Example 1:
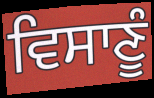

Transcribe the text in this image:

ਵਿਸਾਣੂੰ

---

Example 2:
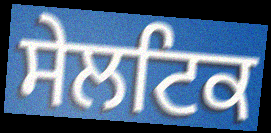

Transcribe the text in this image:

ਸੇਲਟਿਕ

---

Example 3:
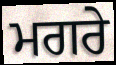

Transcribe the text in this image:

ਮਗਰੇ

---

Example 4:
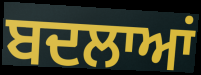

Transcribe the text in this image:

ਬਦਲਾਆਂ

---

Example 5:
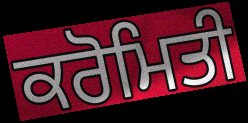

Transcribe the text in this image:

ਕਰੋਮਿਤੀ